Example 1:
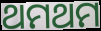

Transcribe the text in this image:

ଥମଥମ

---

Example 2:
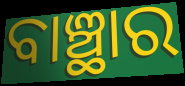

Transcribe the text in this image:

ବାଞ୍ଛାର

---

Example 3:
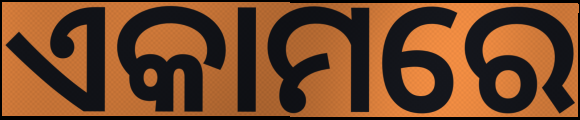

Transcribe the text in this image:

ଏକାମରେ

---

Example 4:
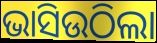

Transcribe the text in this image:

ଭାସିଉଠିଲା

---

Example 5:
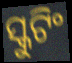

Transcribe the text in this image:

ସ୍କୁଟିଂ